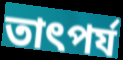
তাৎপৰ্য